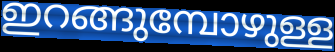
ഇറങ്ങുമ്പോഴുള്ള